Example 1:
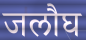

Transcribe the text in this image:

जलौघ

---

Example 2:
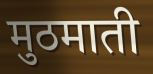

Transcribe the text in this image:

मुठमाती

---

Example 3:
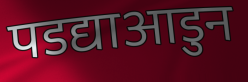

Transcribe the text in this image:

पडद्याआडुन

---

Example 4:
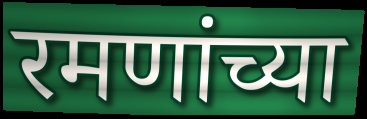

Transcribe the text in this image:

रमणांच्या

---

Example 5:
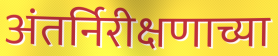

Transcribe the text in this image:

अंतर्निरीक्षणाच्या